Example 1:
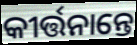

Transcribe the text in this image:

କୀର୍ତ୍ତନାନ୍ତେ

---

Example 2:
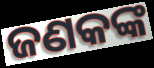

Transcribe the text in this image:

ଜଣକଙ୍କ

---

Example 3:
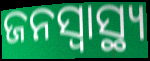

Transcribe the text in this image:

ଜନସ୍ୱାସ୍ଥ୍ୟ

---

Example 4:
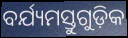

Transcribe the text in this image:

ବର୍ଯ୍ୟମସ୍ତୁଗୁଡ଼ିକ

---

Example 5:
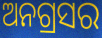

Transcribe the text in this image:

ଅନଗ୍ରସର